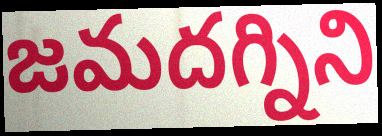
జమదగ్నిని